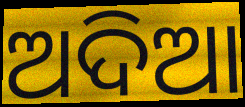
ଅଦିଆ